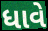
ધાવે